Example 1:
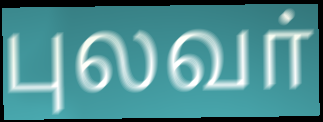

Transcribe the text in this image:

புலவர்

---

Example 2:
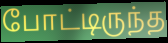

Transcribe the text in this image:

போட்டிருந்த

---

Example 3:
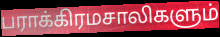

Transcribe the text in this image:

பராக்கிரமசாலிகளும்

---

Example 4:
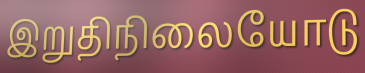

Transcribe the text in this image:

இறுதிநிலையோடு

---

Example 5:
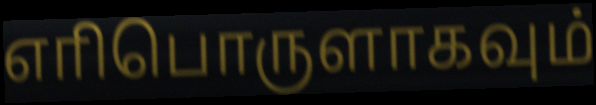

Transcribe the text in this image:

எரிபொருளாகவும்